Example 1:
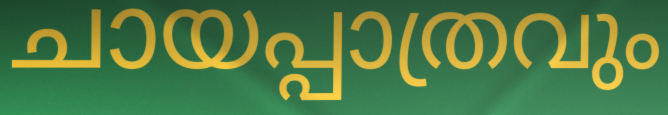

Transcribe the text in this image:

ചായപ്പാത്രവും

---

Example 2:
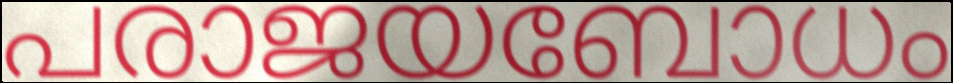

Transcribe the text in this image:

പരാജയബോധം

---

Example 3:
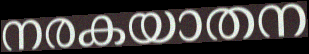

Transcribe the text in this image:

നരകയാതന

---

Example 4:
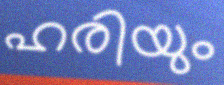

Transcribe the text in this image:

ഹരിയും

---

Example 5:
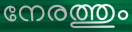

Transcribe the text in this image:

നേരത്തും